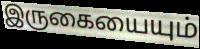
இருகையையும்